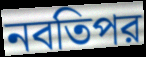
নবতিপর